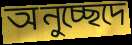
অনুচ্ছেদে